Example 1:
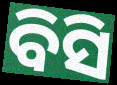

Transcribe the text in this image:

ବିସି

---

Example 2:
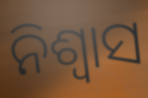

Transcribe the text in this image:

ନିଶ୍ଵାସ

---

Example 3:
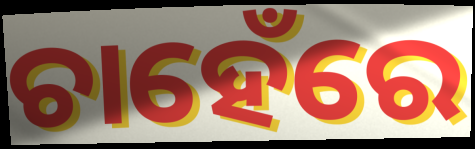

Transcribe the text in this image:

ଚାହେଁରେ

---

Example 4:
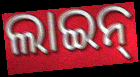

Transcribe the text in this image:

ଲାଇନ୍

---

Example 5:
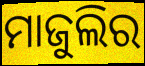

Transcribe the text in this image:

ମାଜୁଲିର